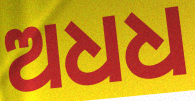
ଅଧଧ